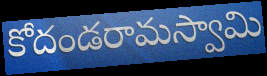
కోదండరామస్వామి